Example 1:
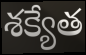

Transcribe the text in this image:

శక్యేత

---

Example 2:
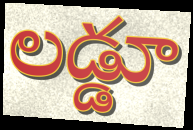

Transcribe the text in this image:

లడ్డూ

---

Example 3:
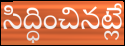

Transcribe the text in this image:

సిద్ధించినట్లే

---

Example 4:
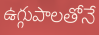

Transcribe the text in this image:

ఉగ్గుపాలతోనే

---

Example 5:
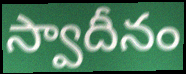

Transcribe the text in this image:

స్వాదీనం